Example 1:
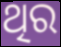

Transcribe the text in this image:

ଥିର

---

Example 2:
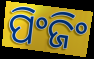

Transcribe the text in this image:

ପିଂଜିଂ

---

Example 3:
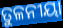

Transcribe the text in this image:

ତୁଳନୀୟା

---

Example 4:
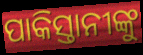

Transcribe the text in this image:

ପାକିସ୍ତାନୀଙ୍କୁ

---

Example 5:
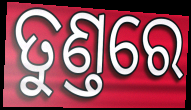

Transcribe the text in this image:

ତୁଣ୍ତରେ